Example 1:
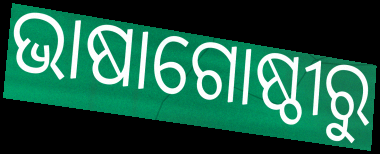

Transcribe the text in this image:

ଭାଷାଗୋଷ୍ଠୀରୁ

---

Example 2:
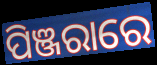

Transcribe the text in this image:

ପିଞ୍ଜରାରେ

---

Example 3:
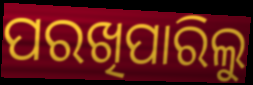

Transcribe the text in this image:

ପରଖିପାରିଲୁ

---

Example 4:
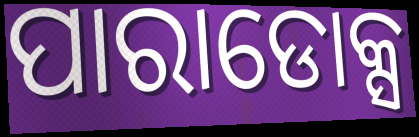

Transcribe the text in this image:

ପାରାଡୋକ୍ସ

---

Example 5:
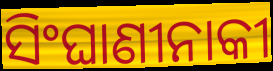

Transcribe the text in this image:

ସିଂଘାଣୀନାକୀ